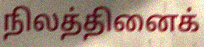
நிலத்தினைக்